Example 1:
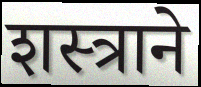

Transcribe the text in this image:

शस्त्राने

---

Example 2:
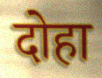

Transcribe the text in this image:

दोहा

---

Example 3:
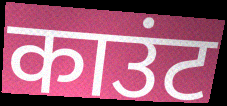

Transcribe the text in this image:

काउंट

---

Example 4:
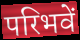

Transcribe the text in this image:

परिभवें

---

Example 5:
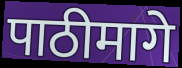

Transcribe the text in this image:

पाठीमागे